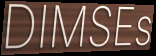
DIMSEs